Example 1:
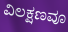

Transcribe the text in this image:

ವಿಲಕ್ಷಣವೂ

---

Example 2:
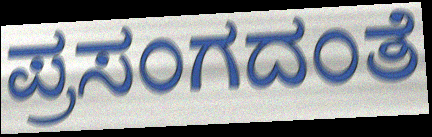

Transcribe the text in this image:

ಪ್ರಸಂಗದಂತೆ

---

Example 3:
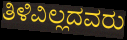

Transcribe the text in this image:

ತಿಳಿವಿಲ್ಲದವರು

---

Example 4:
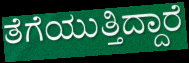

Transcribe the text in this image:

ತೆಗೆಯುತ್ತಿದ್ದಾರೆ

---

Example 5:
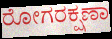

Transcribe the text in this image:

ರೋಗರಕ್ಷಣಾ